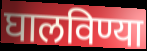
घालविण्या